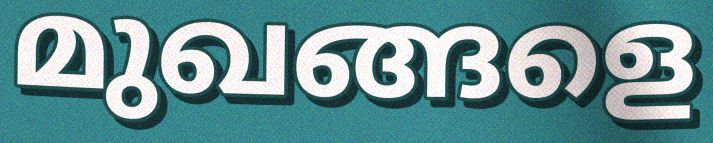
മുഖങ്ങളെ